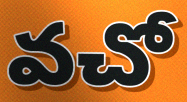
వచో